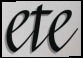
ete